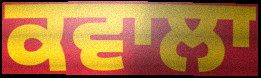
ਕਵਾਲਾ